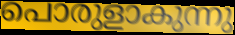
പൊരുളാകുന്നു